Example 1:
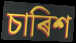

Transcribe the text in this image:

চাৰিশ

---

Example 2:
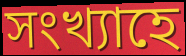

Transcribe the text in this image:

সংখ্যাহে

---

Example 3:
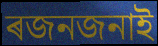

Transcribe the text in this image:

ৰজনজনাই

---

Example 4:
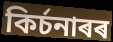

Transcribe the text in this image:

কিৰ্চনাৰৰ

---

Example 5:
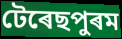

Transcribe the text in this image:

টেৰেছপুৰম